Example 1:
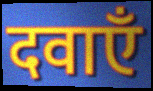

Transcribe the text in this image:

दवाएँ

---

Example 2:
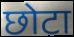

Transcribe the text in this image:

छोटा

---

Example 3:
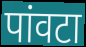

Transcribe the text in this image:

पांवटा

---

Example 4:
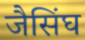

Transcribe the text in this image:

जैसिंघ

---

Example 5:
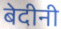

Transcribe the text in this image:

बेदीनी